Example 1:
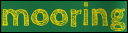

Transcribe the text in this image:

mooring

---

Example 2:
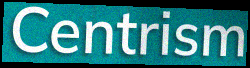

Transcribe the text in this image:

Centrism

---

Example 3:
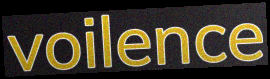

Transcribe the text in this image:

voilence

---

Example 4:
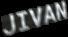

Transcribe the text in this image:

JIVAN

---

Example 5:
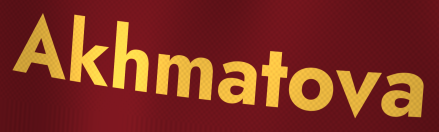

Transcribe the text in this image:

Akhmatova